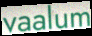
vaalum